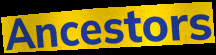
Ancestors